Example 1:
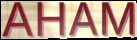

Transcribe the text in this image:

AHAM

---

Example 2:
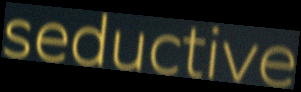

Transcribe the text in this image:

seductive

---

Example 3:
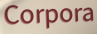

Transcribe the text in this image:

Corpora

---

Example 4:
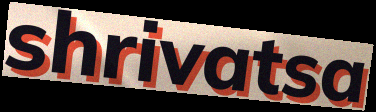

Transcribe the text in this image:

shrivatsa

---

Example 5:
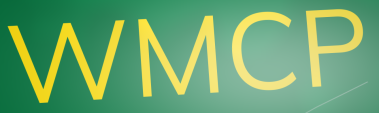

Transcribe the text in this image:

WMCP